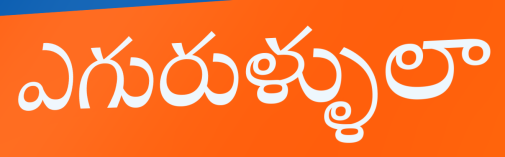
ఎగురుళ్ళులా